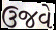
ઉજવે